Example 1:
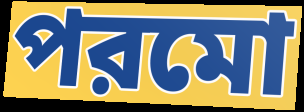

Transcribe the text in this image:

পরমো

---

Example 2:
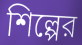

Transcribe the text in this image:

শিল্পের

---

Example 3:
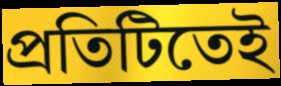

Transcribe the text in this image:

প্রতিটিতেই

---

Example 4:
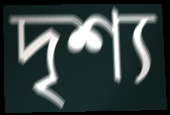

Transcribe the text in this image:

দৃশ্য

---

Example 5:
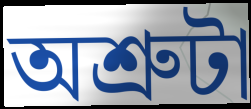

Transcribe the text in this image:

অশ্রুটা